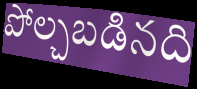
పోల్చబడినది